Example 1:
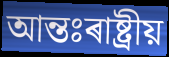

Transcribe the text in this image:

আন্তঃৰাষ্ট্ৰীয়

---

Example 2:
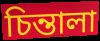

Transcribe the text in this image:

চিন্তালা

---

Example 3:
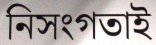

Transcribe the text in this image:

নিসংগতাই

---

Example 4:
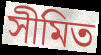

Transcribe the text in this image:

সীমিত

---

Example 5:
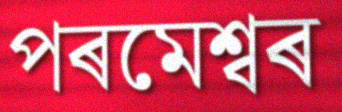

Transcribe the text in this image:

পৰমেশ্বৰ